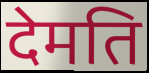
देमति